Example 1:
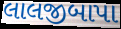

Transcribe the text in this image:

લાલજીબાપા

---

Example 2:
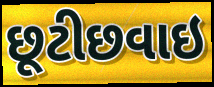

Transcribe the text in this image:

છૂટીછવાઇ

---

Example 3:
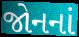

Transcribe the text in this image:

જોનનાં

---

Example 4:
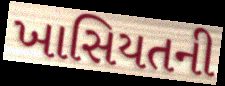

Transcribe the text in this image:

ખાસિયતની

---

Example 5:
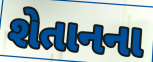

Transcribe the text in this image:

શેતાનના